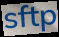
sftp